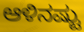
ಆಳಿನಷ್ಟು